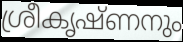
ശ്രീകൃഷ്ണനും